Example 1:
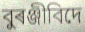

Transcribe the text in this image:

বুৰঞ্জীবিদে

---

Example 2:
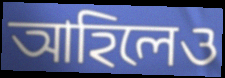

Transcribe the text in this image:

আহিলেও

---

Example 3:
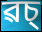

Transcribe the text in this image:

ৱচ্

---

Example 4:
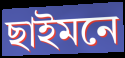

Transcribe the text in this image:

ছাইমনে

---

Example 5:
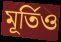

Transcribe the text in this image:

মূৰ্তিও